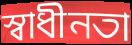
স্বাধীনতা